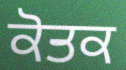
ਕੋਤਕ